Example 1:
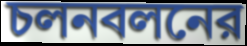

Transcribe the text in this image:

চলনবলনের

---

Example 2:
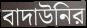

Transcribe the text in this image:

বাদাউনির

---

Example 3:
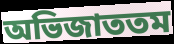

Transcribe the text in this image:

অভিজাততম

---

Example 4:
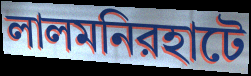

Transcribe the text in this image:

লালমনিরহাটে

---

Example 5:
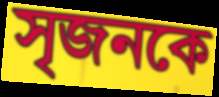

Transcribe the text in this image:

সৃজনকে